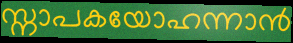
സ്നാപകയോഹന്നാൻ